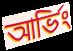
আর্ভিং